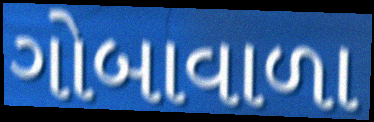
ગોબાવાળા